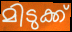
മിടുക്ക്